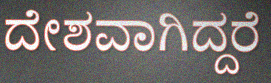
ದೇಶವಾಗಿದ್ದರೆ